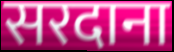
सरदाना